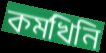
কৰ্মখিনি